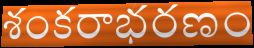
శంకరాభరణం